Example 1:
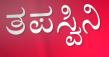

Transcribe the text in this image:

ತಪಸ್ವಿನಿ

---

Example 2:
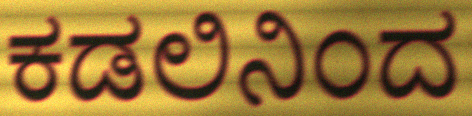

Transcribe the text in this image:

ಕಡಲಿನಿಂದ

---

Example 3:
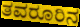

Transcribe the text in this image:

ತವರೂರಿನ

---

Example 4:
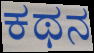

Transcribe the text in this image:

ಕಥನ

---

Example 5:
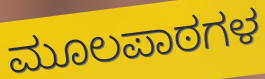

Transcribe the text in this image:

ಮೂಲಪಾಠಗಳ